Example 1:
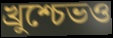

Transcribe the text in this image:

খ্রুশ্চেভও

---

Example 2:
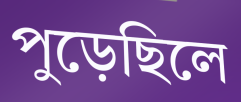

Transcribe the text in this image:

পুড়েছিলে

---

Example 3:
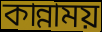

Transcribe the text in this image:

কান্নাময়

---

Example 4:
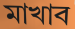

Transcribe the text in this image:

মাখাব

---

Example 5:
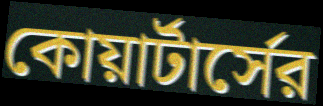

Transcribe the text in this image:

কোয়ার্টার্সের